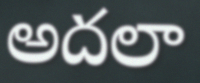
అదలా